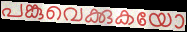
പങ്കുവെക്കുകയോ